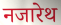
नजारेथ